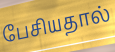
பேசியதால்